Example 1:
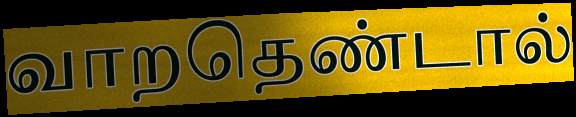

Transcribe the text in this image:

வாறதெண்டால்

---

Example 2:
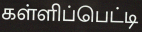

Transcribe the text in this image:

கள்ளிப்பெட்டி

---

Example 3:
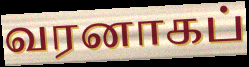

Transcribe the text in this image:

வரனாகப்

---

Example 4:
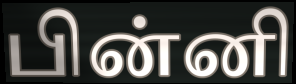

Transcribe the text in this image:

பின்னி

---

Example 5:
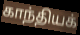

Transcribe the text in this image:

காந்தியக்